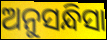
ଅନୁସନ୍ଧିସା